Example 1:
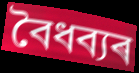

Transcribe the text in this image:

বৈধব্যৰ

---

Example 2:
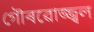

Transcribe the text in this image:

গৌৰৱোজ্জ্বল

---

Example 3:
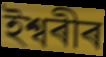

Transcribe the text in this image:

ইশ্বৰীৰ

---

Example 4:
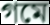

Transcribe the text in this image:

গমে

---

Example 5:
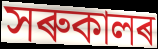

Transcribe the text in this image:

সৰুকালৰ